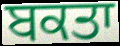
ਬਕਤਾ